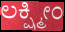
ಲಕ್ಷ್ಮೀಂ